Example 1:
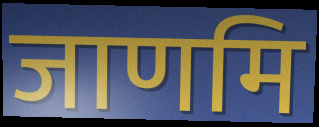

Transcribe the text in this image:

जाणमि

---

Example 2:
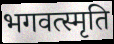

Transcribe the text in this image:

भगवत्स्मृति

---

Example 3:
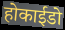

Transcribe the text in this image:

होकाईडो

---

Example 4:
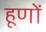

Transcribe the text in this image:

हूणों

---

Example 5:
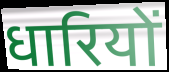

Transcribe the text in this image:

धारियों